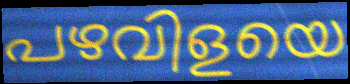
പഴവിളയെ